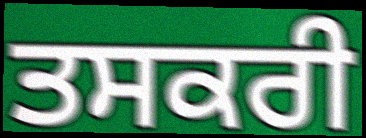
ਤਸਕਰੀ